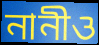
নানীও